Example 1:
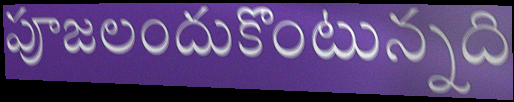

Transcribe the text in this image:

పూజలందుకొంటున్నది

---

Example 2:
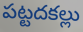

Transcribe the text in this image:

పట్టదకల్లు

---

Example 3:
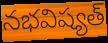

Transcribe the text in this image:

నభవిష్యత్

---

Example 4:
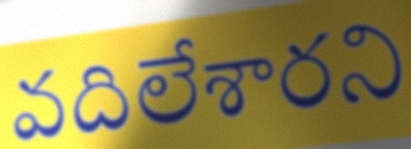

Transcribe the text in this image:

వదిలేశారని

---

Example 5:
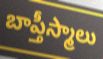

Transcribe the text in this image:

బాప్తీస్మాలు